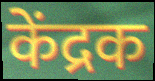
केंद्रक